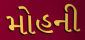
મોહની